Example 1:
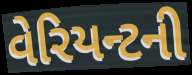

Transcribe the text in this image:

વેરિયન્ટની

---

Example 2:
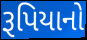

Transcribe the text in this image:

રૂપિયાનો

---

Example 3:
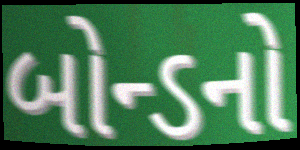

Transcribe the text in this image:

બોન્ડનો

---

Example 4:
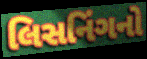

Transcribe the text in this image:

લિસનિંગનો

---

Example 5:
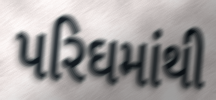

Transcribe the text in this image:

પરિઘમાંથી